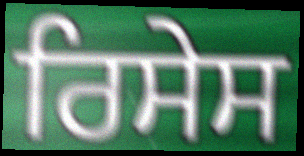
ਰਿਸੇਸ